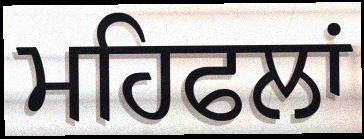
ਮਹਿਫਲਾਂ